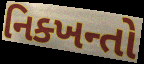
નિક્ખન્તો